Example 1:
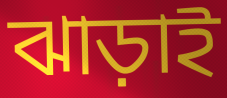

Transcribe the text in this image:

ঝাড়াই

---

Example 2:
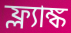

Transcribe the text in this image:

ফ্ল্যাঙ্ক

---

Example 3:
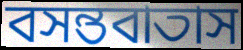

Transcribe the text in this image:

বসন্তবাতাস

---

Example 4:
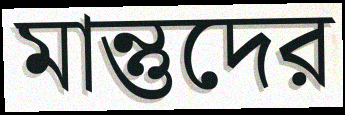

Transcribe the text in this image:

মান্তুদের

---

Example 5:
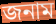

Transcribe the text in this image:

জনাম